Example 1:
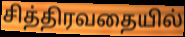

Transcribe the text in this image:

சித்திரவதையில்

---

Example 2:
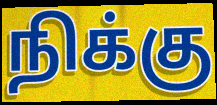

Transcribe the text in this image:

நிக்கு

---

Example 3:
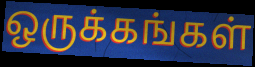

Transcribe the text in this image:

ஒருக்கங்கள்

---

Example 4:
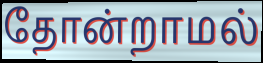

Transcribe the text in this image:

தோன்றாமல்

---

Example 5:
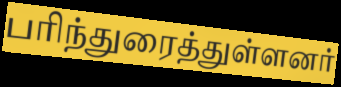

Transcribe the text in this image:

பரிந்துரைத்துள்ளனர்